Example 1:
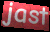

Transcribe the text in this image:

jast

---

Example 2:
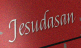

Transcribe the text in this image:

Jesudasan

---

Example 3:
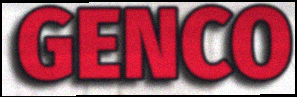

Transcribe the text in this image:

GENCO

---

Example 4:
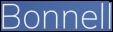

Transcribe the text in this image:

Bonnell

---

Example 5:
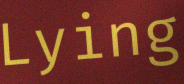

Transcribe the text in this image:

Lying